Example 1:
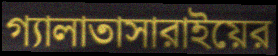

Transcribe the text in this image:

গ্যালাতাসারাইয়ের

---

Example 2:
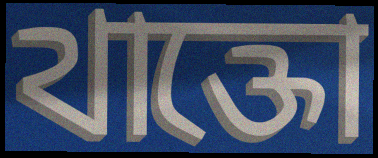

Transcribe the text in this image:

থাক্তো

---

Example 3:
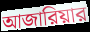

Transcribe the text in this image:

আজারিয়ার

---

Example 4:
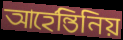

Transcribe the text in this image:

আর্হেন্তিনিয়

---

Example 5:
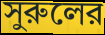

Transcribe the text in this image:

সুরুলের